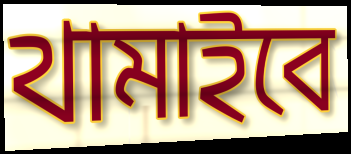
থামাইবে